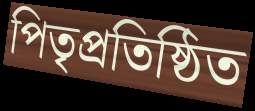
পিতৃপ্রতিষ্ঠিত